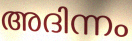
അദിന്നം